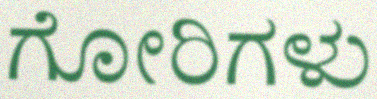
ಗೋರಿಗಳು